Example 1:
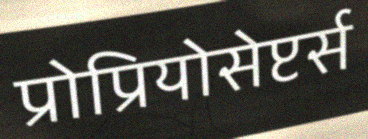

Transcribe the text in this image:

प्रोप्रियोसेप्टर्स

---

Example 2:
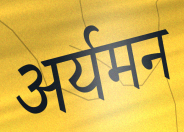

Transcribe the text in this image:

अर्यमन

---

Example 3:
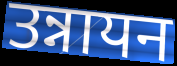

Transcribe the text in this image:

उन्नायन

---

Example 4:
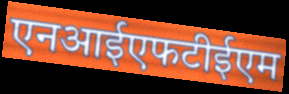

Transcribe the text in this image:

एनआईएफटीईएम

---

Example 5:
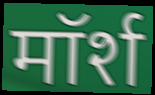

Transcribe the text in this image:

मॉर्श